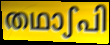
തഥാഽപി